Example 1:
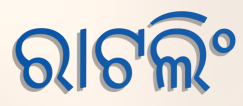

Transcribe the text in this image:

ରାଟଲିଂ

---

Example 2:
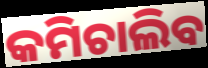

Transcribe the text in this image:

କମିଚାଲିବ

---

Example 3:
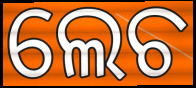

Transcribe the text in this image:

ଲେଚ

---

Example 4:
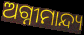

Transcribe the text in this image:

ଅଗ୍ନୀମାନ୍ଦ୍ୟ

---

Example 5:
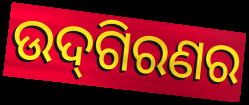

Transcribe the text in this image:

ଉଦ୍‌ଗିରଣର